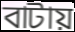
বাটায়